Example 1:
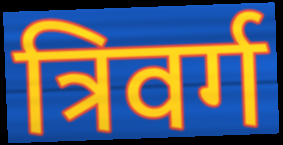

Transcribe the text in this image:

त्रिवर्ग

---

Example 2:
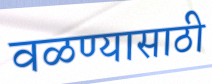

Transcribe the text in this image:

वळण्यासाठी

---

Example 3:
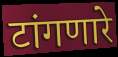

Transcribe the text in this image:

टांगणारे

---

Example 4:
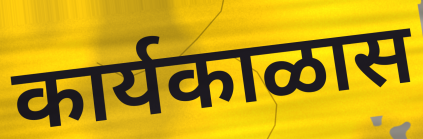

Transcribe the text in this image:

कार्यकाळास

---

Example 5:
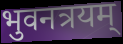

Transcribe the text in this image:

भुवनत्रयम्